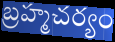
బ్రహ్మచర్యం